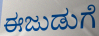
ಈಜುಡುಗೆ